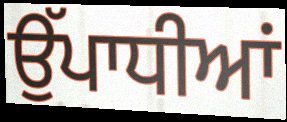
ਉੱਪਾਧੀਆਂ